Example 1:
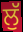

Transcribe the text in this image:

ਲੁੱ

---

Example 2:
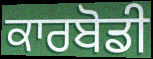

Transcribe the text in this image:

ਕਾਰਬੋਡੀ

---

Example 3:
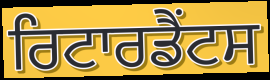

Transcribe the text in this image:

ਰਿਟਾਰਡੈਂਟਸ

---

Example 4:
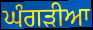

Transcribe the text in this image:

ਘੰਗੜੀਆ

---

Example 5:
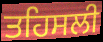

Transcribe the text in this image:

ਤਹਿਸਲੀ